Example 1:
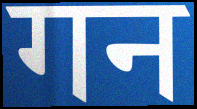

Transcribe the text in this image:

गन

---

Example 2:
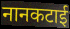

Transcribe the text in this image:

नानकटाई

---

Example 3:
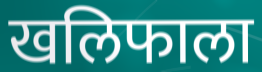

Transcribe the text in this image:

खलिफाला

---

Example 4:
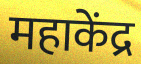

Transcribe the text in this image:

महाकेंद्र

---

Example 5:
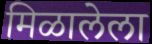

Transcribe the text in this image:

मिळालेला